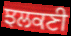
ਝਲਕਣੀ